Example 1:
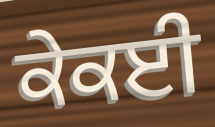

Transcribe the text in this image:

ਕੇਕਈ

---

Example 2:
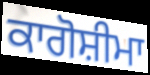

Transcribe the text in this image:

ਕਾਗੋਸ਼ੀਮਾ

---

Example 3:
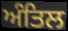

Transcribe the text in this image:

ਅੰਤਿਲ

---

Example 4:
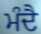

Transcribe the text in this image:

ਮੰਦੈ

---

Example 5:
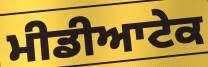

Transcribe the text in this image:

ਮੀਡੀਆਟੇਕ